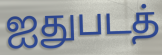
ஐதுபடத்